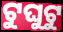
ଟୁଘୁଟୁ